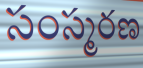
సంస్మరణ